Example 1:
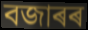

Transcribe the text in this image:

বজাৰৰ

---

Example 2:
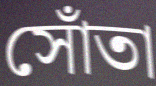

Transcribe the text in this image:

সোঁতা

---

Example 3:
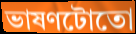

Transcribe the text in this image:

ভাষণটোতো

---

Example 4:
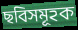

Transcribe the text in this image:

ছবিসমূহক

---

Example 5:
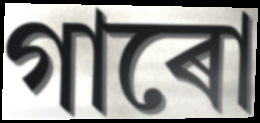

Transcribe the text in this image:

গাৰো